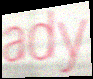
ady